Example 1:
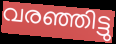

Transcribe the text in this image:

വരഞ്ഞിട്ടു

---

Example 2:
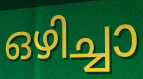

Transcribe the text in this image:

ഒഴിച്ചാ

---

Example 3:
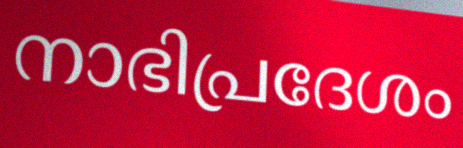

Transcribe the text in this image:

നാഭിപ്രദേശം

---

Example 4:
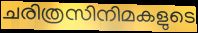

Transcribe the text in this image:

ചരിത്രസിനിമകളുടെ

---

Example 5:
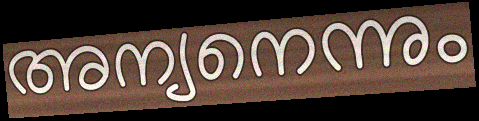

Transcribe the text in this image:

അന്യനെന്നും